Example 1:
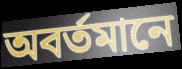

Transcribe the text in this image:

অবর্তমানে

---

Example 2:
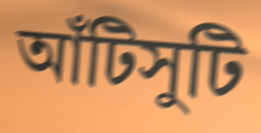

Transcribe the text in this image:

আঁটিসুটি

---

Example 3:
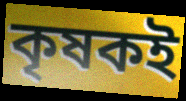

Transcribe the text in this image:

কৃষকই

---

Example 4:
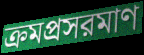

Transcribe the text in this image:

ক্রমপ্রসরমাণ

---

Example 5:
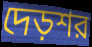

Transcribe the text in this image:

দেড়শর